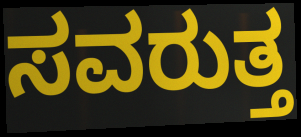
ಸವರುತ್ತ